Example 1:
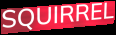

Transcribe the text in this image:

SQUIRREL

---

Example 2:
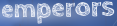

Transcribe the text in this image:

emperors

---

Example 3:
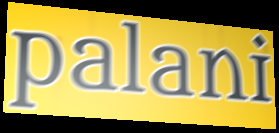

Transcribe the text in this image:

palani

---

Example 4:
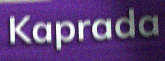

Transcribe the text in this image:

Kaprada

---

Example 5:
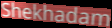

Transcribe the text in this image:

Shekhadam